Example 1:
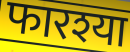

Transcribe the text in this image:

फारश्या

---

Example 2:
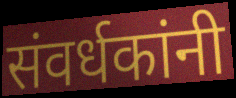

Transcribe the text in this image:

संवर्धकांनी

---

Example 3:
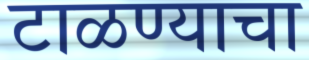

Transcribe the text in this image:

टाळण्याचा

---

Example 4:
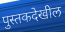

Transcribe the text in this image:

पुस्तकदेखील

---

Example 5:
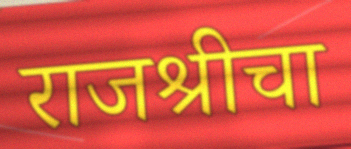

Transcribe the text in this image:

राजश्रीचा